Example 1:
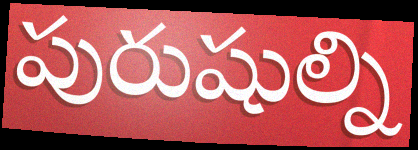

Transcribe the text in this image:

పురుషుల్ని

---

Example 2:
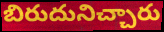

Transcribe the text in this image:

బిరుదునిచ్చారు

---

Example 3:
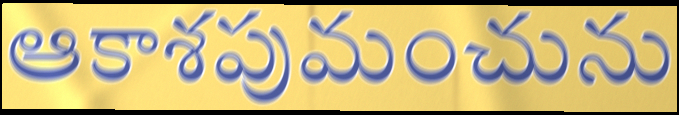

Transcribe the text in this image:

ఆకాశపుమంచును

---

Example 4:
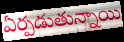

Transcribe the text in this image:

ఏర్పడుతున్నాయి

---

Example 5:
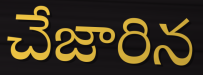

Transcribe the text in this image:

చేజారిన